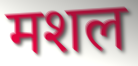
मशल